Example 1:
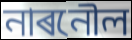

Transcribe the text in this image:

নাৰনৌল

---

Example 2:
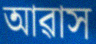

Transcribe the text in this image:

আৱাস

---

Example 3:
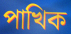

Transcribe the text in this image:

পাখিক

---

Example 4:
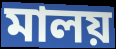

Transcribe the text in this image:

মালয়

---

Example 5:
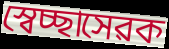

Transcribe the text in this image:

স্বেচ্ছাসেৱক